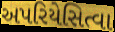
અપરિયેસિત્વા